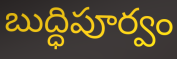
బుద్ధిపూర్వం